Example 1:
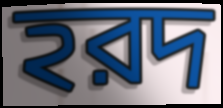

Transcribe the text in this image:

হরদ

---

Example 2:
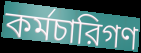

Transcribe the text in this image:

কর্মচারিগণ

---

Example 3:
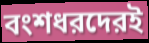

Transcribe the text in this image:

বংশধরদেরই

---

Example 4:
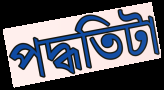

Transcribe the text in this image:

পদ্ধতিটা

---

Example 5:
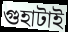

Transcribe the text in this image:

গুহাটাই